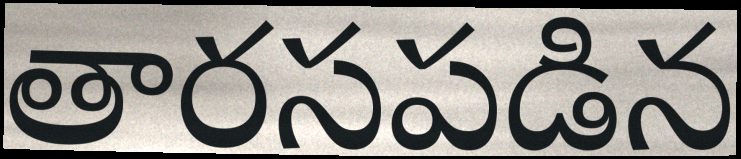
తారసపడిన